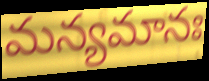
మన్యమానః